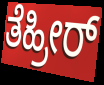
ತೆಹ್ರೀರ್